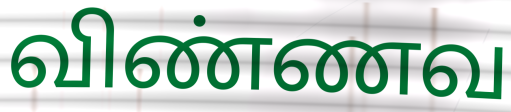
விண்ணவ